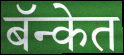
बॅन्केत